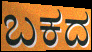
ಬಕದ